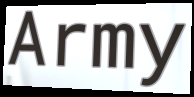
Army